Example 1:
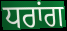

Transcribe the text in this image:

ਧਰਾਂਗ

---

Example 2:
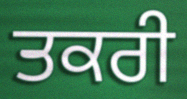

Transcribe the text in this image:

ਤਕਰੀ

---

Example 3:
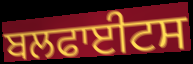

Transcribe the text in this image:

ਬਲਫਾਈਟਸ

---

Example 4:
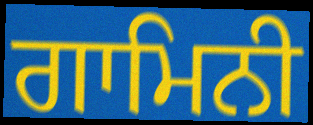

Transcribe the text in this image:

ਗਾਮਿਨੀ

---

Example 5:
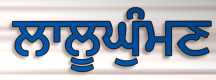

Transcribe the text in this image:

ਲਾਲੂਘੁੰਮਣ